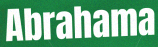
Abrahama